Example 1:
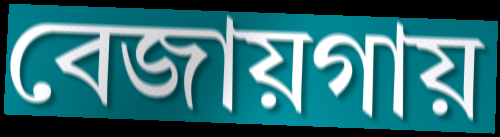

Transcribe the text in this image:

বেজায়গায়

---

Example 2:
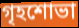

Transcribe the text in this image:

গৃহশোভা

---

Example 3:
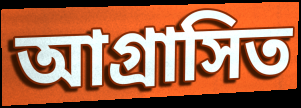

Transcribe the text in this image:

আগ্রাসিত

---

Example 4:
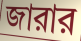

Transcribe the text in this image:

জারার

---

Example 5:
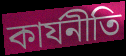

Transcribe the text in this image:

কার্যনীতি